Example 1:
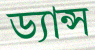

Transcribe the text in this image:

ড্যান্স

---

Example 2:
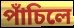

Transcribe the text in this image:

পাঁচিলে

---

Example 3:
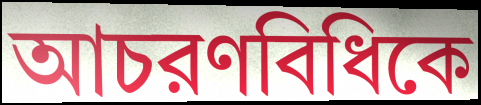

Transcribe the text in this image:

আচরণবিধিকে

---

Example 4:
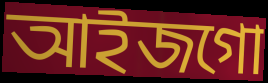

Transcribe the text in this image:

আইজগো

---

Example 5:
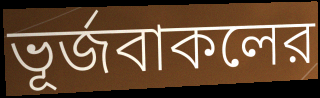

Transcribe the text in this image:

ভূর্জবাকলের